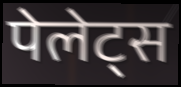
पेलेट्स